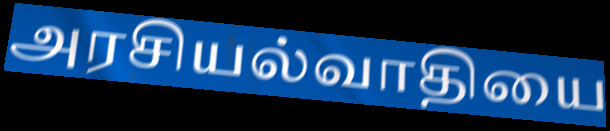
அரசியல்வாதியை